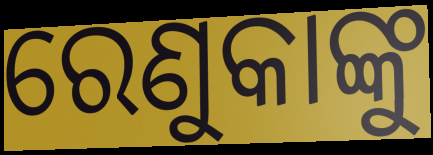
ରେଣୁକାଙ୍କୁ